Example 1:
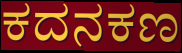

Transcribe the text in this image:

ಕದನಕಣ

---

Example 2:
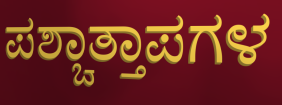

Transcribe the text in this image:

ಪಶ್ಚಾತ್ತಾಪಗಳ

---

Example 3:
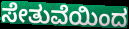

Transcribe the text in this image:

ಸೇತುವೆಯಿಂದ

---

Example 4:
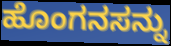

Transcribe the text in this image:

ಹೊಂಗನಸನ್ನು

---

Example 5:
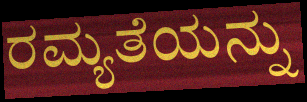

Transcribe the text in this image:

ರಮ್ಯತೆಯನ್ನು